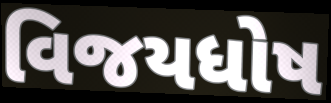
વિજયધોષ